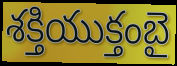
శక్తియుక్తంబై